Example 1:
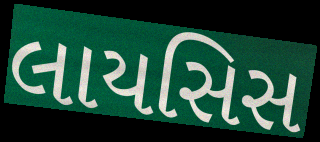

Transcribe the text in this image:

લાયસિસ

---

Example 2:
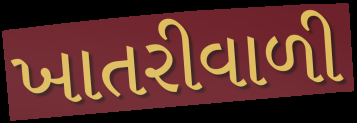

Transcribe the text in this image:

ખાતરીવાળી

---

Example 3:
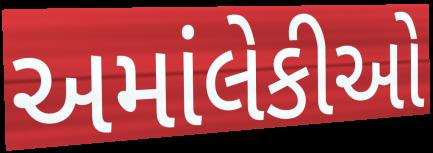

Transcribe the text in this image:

અમાંલેકીઓ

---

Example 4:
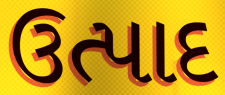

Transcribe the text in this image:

ઉત્પાદ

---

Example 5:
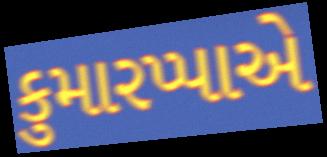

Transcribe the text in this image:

કુમારપ્પાએ